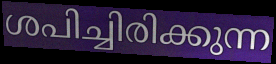
ശപിച്ചിരിക്കുന്ന